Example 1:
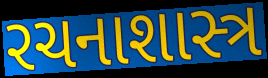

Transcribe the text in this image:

રચનાશાસ્ત્ર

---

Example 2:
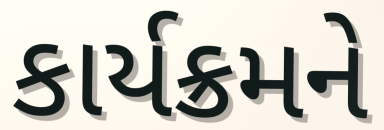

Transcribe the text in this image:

કાર્યક્રમને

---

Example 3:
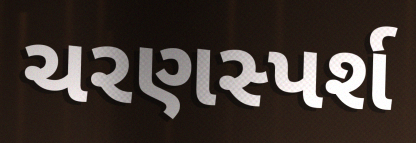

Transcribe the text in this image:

ચરણસ્પર્શ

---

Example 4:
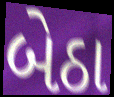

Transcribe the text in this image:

બેઠા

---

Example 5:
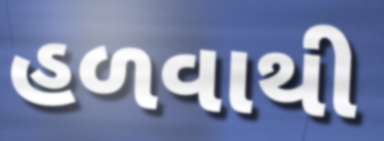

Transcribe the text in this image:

હળવાથી